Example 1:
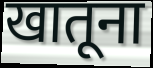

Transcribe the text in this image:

खातूना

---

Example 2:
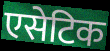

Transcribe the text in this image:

एसेटिक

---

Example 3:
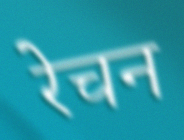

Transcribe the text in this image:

रेचन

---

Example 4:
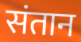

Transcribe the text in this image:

संतान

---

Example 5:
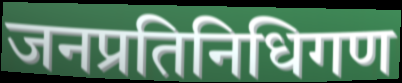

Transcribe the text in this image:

जनप्रतिनिधिगण